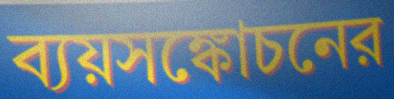
ব্যয়সঙ্কোচনের